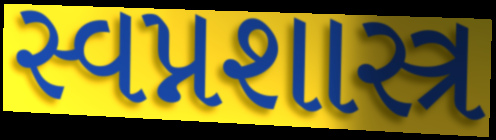
સ્વપ્નશાસ્ત્ર